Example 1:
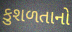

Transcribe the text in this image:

કુશળતાનો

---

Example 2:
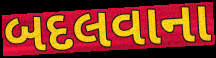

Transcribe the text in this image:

બદલવાના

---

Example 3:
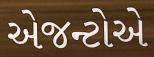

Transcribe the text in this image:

એજન્ટોએ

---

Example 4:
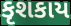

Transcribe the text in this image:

કૃશકાય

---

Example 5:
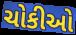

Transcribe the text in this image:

ચોકીઓ